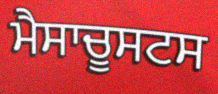
ਮੈਸਾਚੂਸਟਸ